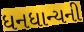
ધનધાન્યની